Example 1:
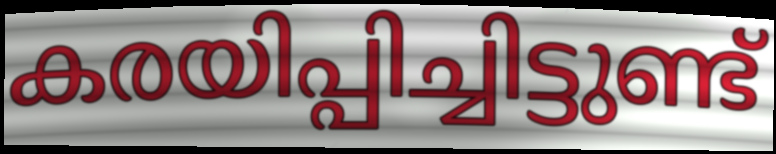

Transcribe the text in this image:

കരയിപ്പിച്ചിട്ടുണ്ട്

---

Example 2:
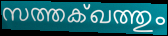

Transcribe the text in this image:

സത്തക്ഖത്തും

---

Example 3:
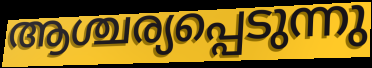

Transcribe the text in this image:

ആശ്ചര്യപ്പെടുന്നു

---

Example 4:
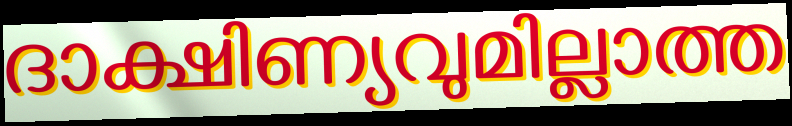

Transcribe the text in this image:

ദാക്ഷിണ്യവുമില്ലാത്ത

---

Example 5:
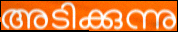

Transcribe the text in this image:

അടിക്കുന്നു